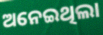
ଅନେଇଥିଲା